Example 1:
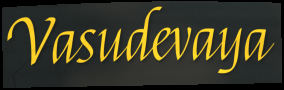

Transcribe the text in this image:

Vasudevaya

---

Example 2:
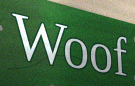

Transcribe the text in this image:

Woof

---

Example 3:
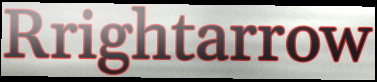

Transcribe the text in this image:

Rrightarrow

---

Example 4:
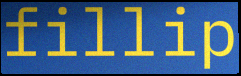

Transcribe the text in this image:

fillip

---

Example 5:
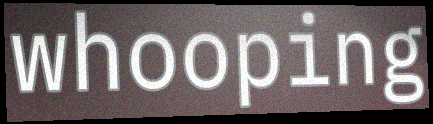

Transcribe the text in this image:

whooping